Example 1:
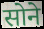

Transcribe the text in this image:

सोने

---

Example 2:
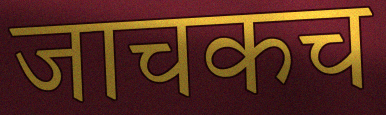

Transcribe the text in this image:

जाचकच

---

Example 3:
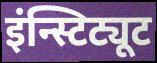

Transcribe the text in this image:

इंन्स्टिट्यूट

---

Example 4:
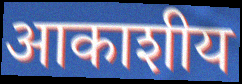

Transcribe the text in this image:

आकाशीय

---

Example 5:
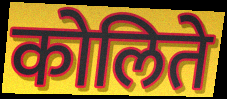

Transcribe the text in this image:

कोलिते